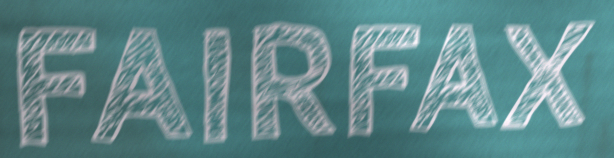
FAIRFAX